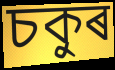
চকুৰ